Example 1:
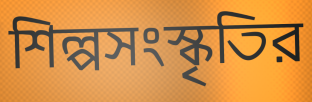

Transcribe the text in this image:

শিল্পসংস্কৃতির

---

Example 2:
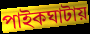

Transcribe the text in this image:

পাইকঘাটায়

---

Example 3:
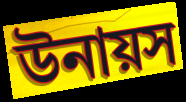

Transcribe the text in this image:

উনায়স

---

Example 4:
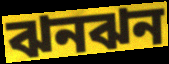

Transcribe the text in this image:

ঝনঝন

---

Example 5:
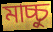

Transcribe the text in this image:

মাচ্চু